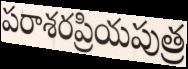
పరాశరప్రియపుత్ర